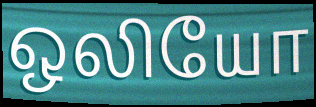
ஒலியோ